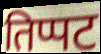
तिप्पट